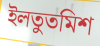
ইলতুতমিশ